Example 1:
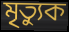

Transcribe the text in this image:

মৃত্যুক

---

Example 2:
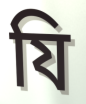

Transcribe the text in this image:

যি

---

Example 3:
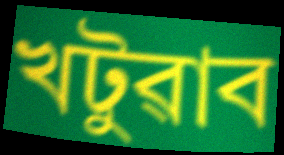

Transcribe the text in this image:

খটুৱাব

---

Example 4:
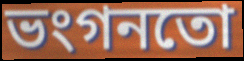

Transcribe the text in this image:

ভংগনতো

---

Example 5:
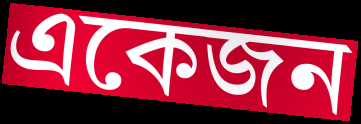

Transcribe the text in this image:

একেজন